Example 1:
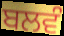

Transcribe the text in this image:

ਬਲਵੰ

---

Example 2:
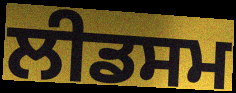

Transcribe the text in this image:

ਲੀਡਸਮ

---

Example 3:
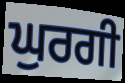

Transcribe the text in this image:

ਘੁਰਗੀ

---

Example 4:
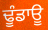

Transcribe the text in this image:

ਢੂੰਡਾਊ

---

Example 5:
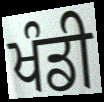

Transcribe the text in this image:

ਖੰਡੀ